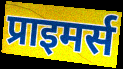
प्राइमर्स